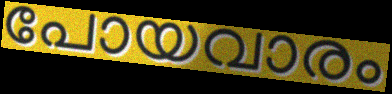
പോയവാരം